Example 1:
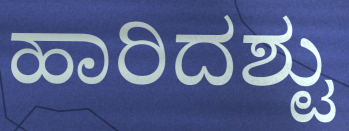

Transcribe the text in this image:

ಹಾರಿದಶ್ಟು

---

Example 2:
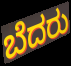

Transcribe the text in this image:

ಬೆದರು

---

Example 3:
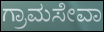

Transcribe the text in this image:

ಗ್ರಾಮಸೇವಾ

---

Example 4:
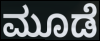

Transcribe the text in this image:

ಮೂಡೆ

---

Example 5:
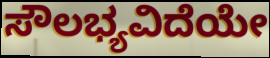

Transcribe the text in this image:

ಸೌಲಭ್ಯವಿದೆಯೇ